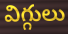
విగ్గులు